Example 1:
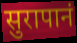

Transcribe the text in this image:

सुरापानं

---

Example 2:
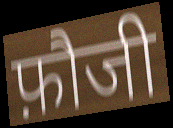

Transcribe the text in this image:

फ़ौजी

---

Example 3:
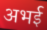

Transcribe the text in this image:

अभई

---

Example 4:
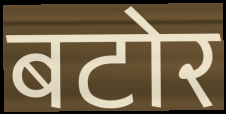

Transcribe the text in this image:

बटोर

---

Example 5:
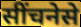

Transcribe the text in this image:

सींचनेसे